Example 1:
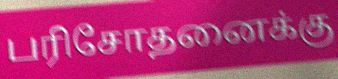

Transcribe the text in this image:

பரிசோதனைக்கு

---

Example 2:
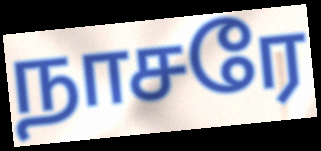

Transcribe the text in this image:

நாசரே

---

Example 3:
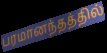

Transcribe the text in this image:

பரமானந்தத்தில்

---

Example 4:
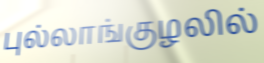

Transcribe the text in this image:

புல்லாங்குழலில்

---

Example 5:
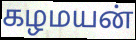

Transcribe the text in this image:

கழமயன்